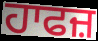
ਹਾਫਜ਼